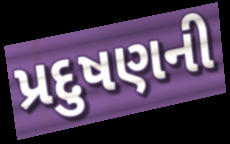
પ્રદુષણની